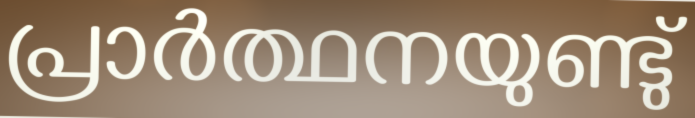
പ്രാർത്ഥനയുണ്ടു്